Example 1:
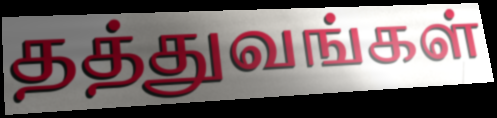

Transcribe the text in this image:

தத்துவங்கள்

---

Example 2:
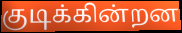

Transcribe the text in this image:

குடிக்கின்றன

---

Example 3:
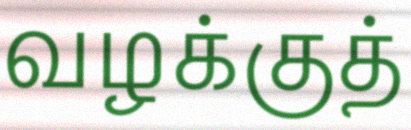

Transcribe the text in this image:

வழக்குத்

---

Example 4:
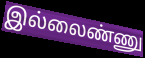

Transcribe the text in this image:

இல்லைண்ணு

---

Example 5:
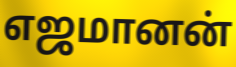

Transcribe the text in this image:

எஜமானன்